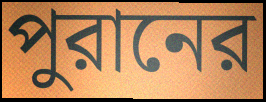
পুরানের